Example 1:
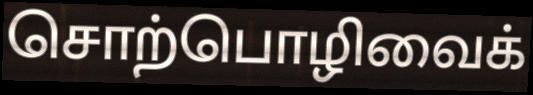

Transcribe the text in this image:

சொற்பொழிவைக்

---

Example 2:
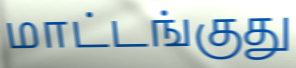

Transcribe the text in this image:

மாட்டங்குது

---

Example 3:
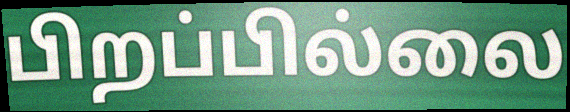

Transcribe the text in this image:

பிறப்பில்லை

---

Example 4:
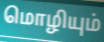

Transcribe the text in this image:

மொழியும்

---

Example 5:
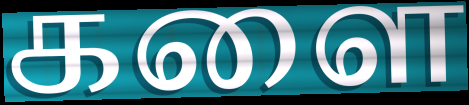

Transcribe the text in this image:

களை